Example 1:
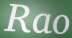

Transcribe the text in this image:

Rao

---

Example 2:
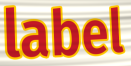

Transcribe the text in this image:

label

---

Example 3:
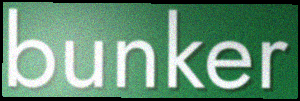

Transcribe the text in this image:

bunker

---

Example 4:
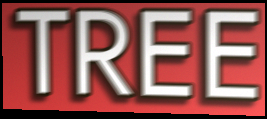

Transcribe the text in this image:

TREE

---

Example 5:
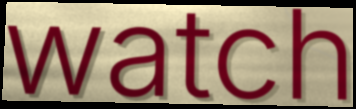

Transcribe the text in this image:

watch